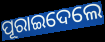
ପୂରାଇଦେଲେ